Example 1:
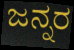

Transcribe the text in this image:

ಜನ್ನರ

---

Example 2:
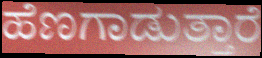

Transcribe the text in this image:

ಹೆಣಗಾಡುತ್ತಾರೆ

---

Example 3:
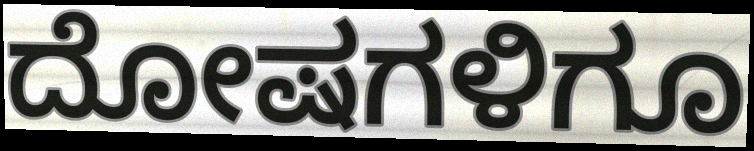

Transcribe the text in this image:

ದೋಷಗಳಿಗೂ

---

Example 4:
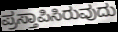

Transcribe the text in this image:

ಪ್ರಸ್ತಾಪಿಸಿರುವುದು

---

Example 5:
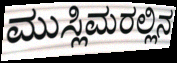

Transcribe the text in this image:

ಮುಸ್ಲಿಮರಲ್ಲಿನ